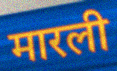
मारली